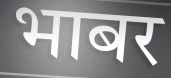
भाबर